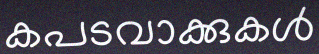
കപടവാക്കുകൾ